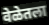
वेळेतला